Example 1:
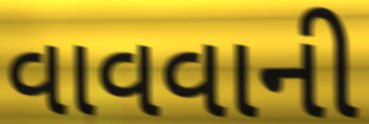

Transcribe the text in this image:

વાવવાની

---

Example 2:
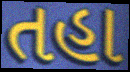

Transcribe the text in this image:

તહા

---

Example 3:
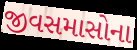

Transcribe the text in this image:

જીવસમાસોના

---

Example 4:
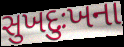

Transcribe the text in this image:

સુખદુઃખના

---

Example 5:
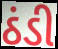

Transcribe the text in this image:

ઠંડી